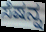
ಸೆಷನ್ನ